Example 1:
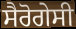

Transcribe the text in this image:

ਸੈਰੋਗੇਸੀ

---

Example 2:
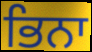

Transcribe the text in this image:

ਭਿਨਾ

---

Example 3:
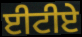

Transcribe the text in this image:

ਈਟੀਏ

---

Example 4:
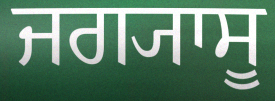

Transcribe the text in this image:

ਜਗ੍ਯਾਸੂ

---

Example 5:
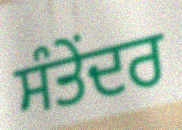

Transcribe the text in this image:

ਸੰਤੇਂਦਰ